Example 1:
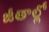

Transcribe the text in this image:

జీతాల్లో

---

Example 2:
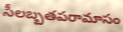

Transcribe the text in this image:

సీలబ్బతపరామాసం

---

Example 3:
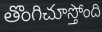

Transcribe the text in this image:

తొంగిచూస్తోంది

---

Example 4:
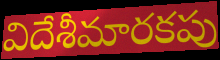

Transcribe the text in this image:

విదేశీమారకపు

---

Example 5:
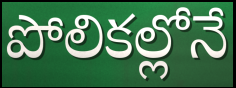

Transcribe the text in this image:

పోలికల్లోనే